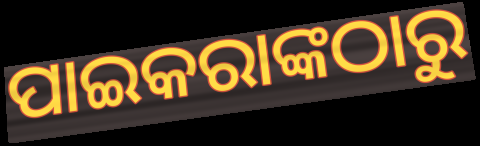
ପାଇକରାଙ୍କଠାରୁ